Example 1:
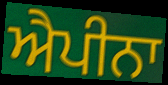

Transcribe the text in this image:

ਐਪੀਨਾ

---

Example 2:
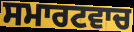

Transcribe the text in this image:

ਸਮਾਰਟਵਾਚ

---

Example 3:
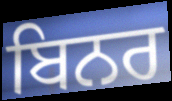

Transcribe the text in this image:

ਬਿਨਰ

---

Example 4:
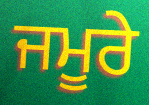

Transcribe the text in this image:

ਜਮੂਰੇ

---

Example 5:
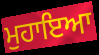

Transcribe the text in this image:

ਮੁਹਾਇਆ